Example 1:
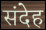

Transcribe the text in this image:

संदेह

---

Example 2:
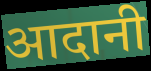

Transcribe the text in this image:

आदानी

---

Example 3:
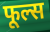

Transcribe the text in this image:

फूल्स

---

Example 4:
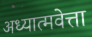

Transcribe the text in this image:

अध्यात्मवेत्ता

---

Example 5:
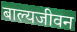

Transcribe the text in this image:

बाल्यजीवन